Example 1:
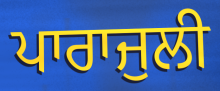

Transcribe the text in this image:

ਪਾਰਾਜੁਲੀ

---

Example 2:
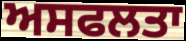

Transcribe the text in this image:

ਅਸਫਲਤਾ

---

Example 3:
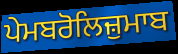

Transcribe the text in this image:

ਪੇਮਬਰੋਲਿਜ਼ੁਮਾਬ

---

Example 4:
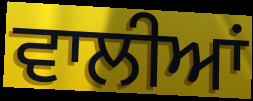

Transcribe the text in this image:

ਵਾਲੀਆਂ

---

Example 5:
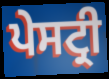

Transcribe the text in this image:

ਪੇਸਟ੍ਰੀ